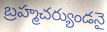
బ్రహ్మచర్యుండనై